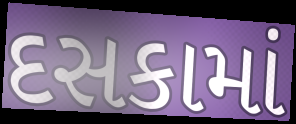
દસકામાં